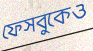
ফেসবুকেও